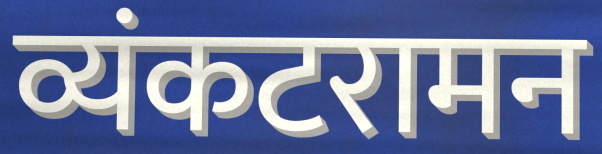
व्यंकटरामन